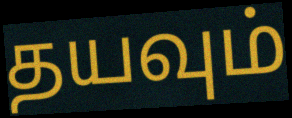
தயவும்